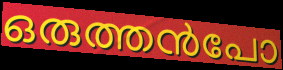
ഒരുത്തൻപോ